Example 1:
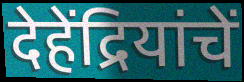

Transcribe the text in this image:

देहेंद्रियांचें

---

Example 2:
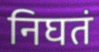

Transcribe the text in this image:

निघतं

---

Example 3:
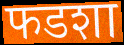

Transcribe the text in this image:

फडशा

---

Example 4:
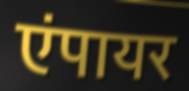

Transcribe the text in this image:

एंपायर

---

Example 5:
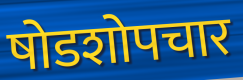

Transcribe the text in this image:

षोडशोपचार